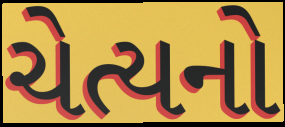
ચેત્યનો